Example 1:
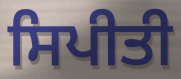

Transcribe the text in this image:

ਸਿਪੀਤੀ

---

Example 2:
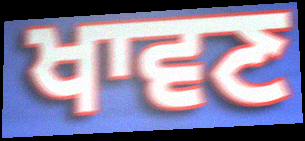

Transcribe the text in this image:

ਖਾਵਣ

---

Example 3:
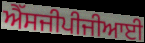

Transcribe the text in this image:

ਐੱਸਜੀਪੀਜੀਆਈ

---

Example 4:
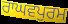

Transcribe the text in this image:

ਰਾਘਵਪੁਰਮ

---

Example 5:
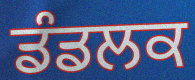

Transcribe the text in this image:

ਡੰਡਲਕ